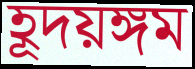
হূদয়ঙ্গম